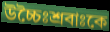
উচ্চৈঃশ্রবাঃকে